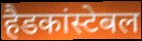
हैडकांस्टेबल